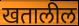
खतालील